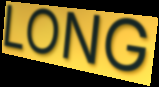
LONG